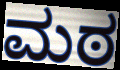
ಮಠ